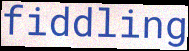
fiddling